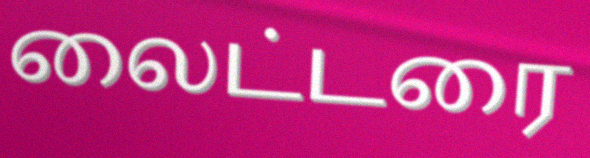
லைட்டரை